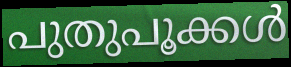
പുതുപൂക്കൾ